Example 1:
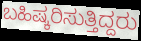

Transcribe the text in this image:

ಬಹಿಷ್ಕರಿಸುತ್ತಿದ್ದರು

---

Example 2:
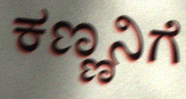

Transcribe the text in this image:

ಕಣ್ಣನಿಗೆ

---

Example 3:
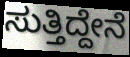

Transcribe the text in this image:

ಸುತ್ತಿದ್ದೇನೆ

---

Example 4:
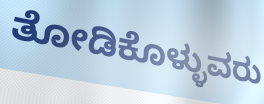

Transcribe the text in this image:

ತೋಡಿಕೊಳ್ಳುವರು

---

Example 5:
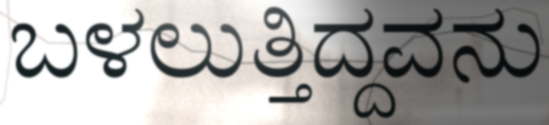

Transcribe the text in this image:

ಬಳಲುತ್ತಿದ್ದವನು